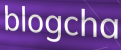
blogcha